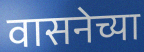
वासनेच्या